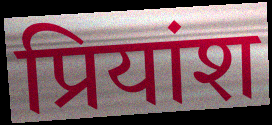
प्रियांश